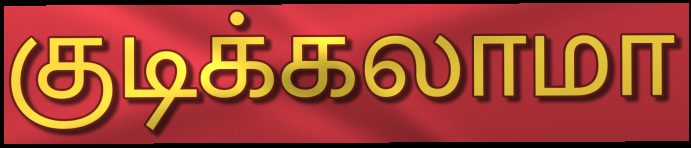
குடிக்கலாமா